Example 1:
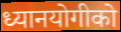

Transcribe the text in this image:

ध्यानयोगीको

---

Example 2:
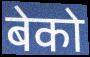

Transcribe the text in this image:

बेको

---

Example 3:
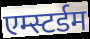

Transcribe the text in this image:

एम्स्टर्डम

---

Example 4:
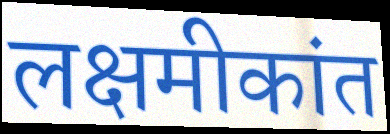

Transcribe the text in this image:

लक्षमीकांत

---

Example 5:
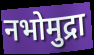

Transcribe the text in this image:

नभोमुद्रा